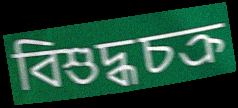
বিশুদ্ধচক্র